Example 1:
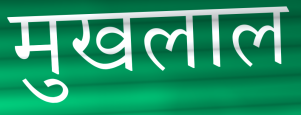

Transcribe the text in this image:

मुखलाल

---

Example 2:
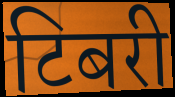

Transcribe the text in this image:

टिबरी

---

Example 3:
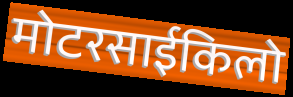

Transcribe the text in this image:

मोटरसाईकिलो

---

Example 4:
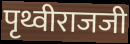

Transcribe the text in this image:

पृथ्वीराजजी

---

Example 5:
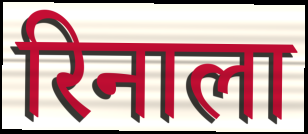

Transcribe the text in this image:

रिनाला